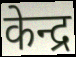
केन्द्र